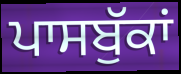
ਪਾਸਬੁੱਕਾਂ